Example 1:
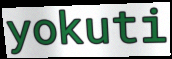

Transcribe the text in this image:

yokuti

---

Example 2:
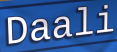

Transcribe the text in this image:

Daali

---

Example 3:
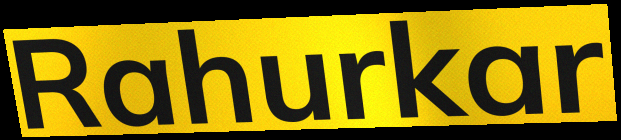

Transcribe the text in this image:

Rahurkar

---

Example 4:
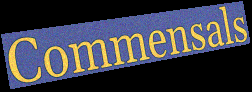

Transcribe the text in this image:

Commensals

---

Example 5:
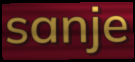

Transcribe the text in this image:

sanje